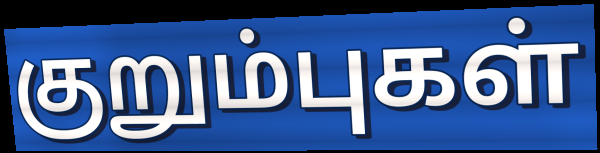
குறும்புகள்